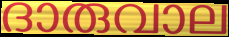
ദാരുവാല